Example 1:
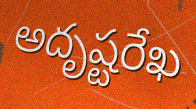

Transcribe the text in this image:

అదృష్టరేఖ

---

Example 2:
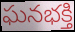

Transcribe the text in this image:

ఘనభక్తి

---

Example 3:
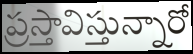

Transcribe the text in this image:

ప్రస్తావిస్తున్నారో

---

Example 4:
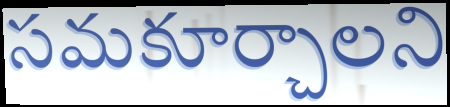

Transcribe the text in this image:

సమకూర్చాలని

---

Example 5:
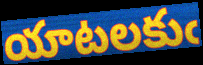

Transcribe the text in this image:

యాటలకుఁ